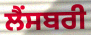
ਲੈਂਸਬਰੀ